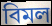
বিমল